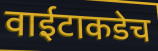
वाईटाकडेच